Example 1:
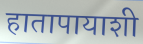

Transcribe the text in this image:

हातापायाशी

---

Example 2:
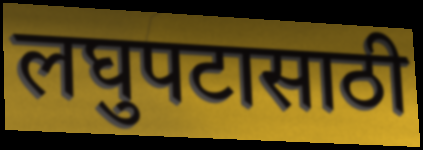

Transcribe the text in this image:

लघुपटासाठी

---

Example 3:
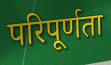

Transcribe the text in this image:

परिपूर्णता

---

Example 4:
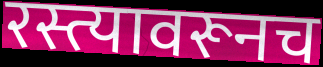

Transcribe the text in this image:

रस्त्यावरूनच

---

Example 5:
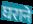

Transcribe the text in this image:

घराने